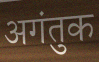
अगंतुक